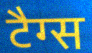
टैग्स